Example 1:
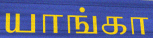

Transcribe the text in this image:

யாங்கா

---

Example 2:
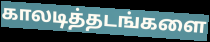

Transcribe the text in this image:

காலடித்தடங்களை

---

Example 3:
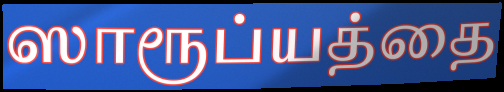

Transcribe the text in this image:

ஸாரூப்யத்தை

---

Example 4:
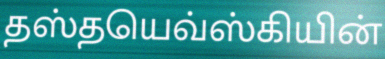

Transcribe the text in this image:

தஸ்தயெவ்ஸ்கியின்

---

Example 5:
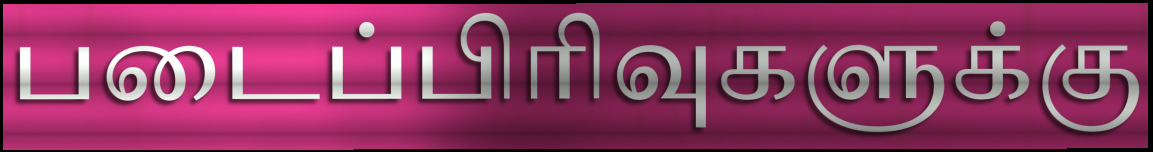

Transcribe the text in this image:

படைப்பிரிவுகளுக்கு